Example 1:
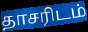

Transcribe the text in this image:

தாசரிடம்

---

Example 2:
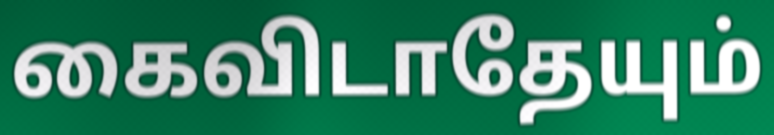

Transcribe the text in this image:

கைவிடாதேயும்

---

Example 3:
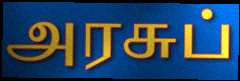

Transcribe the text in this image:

அரசுப்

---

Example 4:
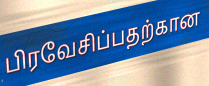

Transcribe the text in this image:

பிரவேசிப்பதற்கான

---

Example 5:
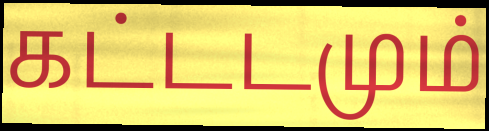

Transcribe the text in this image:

கட்டடமும்